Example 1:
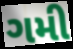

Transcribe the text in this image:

ગમી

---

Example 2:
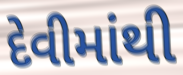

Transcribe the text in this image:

દેવીમાંથી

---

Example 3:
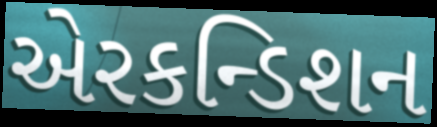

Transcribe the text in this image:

એરકન્ડિશન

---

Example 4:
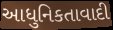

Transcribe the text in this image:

આધુનિકતાવાદી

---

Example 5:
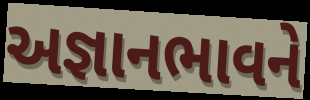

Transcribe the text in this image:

અજ્ઞાનભાવને